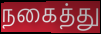
நகைத்து